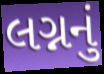
લગ્નનું